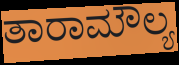
ತಾರಾಮೌಲ್ಯ